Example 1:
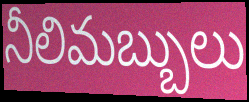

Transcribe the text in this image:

నీలిమబ్బులు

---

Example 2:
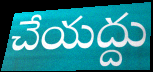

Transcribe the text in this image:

చేయద్దు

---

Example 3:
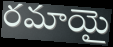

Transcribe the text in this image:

రమాయై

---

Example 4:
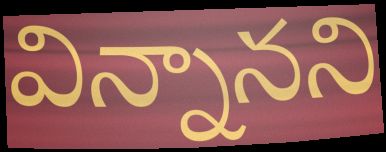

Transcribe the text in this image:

విన్నానని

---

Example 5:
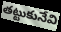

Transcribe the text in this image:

తట్టుకునేవి